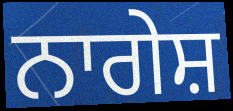
ਨਾਗੇਸ਼